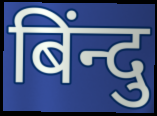
बिंन्दु